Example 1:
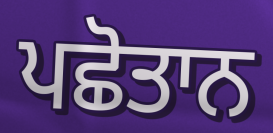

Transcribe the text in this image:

ਪਛੋਤਾਨ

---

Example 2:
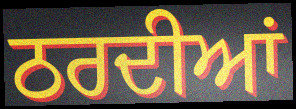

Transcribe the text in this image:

ਠਰਦੀਆਂ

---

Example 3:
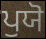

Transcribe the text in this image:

ਪੁਯੋ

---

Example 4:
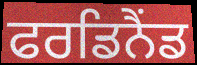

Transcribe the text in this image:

ਫਰਡਿਨੈਂਡ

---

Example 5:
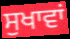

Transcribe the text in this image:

ਸੁਖਾਵਾਂ